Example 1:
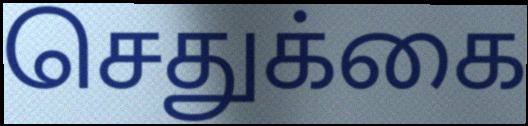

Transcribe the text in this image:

செதுக்கை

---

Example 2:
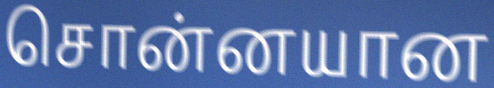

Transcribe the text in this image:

சொன்னயான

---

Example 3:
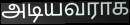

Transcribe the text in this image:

அடியவராக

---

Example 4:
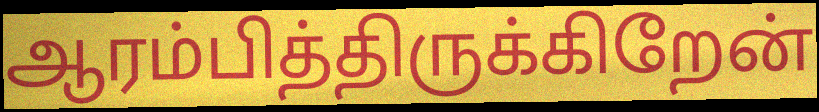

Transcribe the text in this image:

ஆரம்பித்திருக்கிறேன்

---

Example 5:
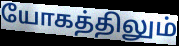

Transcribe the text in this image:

யோகத்திலும்